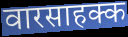
वारसाहक्क